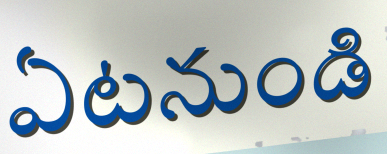
ఏటనుండి